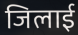
जिलाई